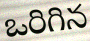
ఒరిగిన